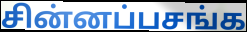
சின்னப்பசங்க